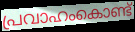
പ്രവാഹംകൊണ്ട്